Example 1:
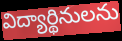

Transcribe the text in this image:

విద్యార్థినులను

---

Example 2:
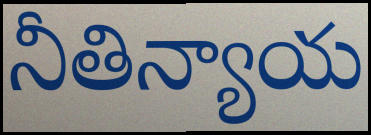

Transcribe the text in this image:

నీతిన్యాయ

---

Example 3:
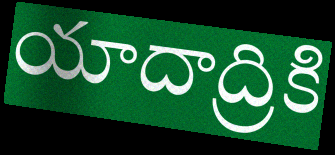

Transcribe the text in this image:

యాదాద్రికి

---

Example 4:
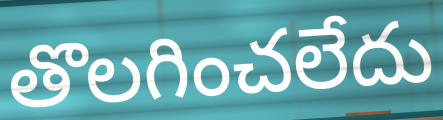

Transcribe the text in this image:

తొలగించలేదు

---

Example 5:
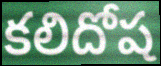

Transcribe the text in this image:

కలిదోష